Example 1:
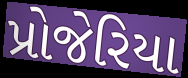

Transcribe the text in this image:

પ્રોજેરિયા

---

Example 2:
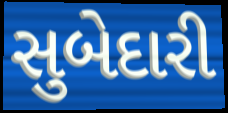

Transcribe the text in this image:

સુબેદારી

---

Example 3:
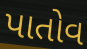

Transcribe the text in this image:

પાતોવ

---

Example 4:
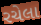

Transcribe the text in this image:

રચેલા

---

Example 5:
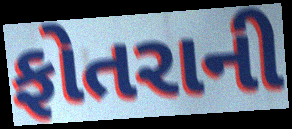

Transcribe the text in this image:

ફોતરાની